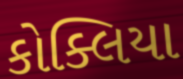
કોક્લિયા